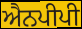
ਐਨਪੀਪੀ